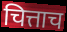
चित्ताच